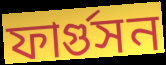
ফার্গুসন